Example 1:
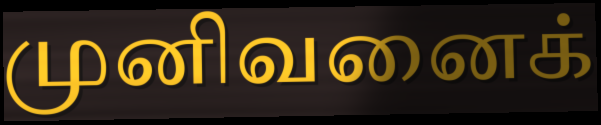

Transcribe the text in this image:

முனிவனைக்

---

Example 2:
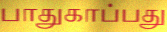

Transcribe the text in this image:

பாதுகாப்பது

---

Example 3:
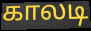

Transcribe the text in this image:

காலடி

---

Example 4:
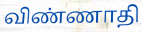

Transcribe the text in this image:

விண்ணாதி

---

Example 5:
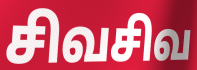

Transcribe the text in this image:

சிவசிவ